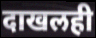
दाखलही